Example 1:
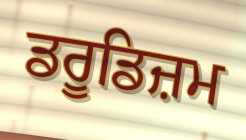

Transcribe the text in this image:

ਡਰੂਡਿਜ਼ਮ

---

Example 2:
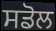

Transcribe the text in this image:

ਸਡੋਲ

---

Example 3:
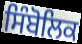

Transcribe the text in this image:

ਸਿੰਬੋਲਿਕ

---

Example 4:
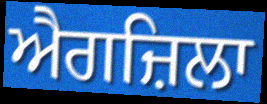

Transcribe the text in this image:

ਐਗਜ਼ਿਲਾ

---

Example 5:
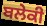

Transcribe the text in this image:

ਬਲੇਕੀ